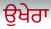
ਉਖੇਰਾ